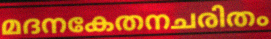
മദനകേതനചരിതം